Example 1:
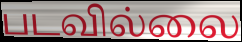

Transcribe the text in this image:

படவில்லை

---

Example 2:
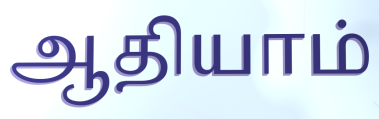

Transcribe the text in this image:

ஆதியாம்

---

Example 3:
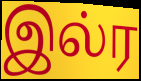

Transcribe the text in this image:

இல்ர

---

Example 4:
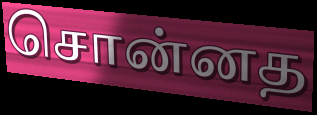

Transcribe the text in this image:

சொன்னத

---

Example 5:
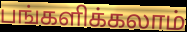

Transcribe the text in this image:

பங்களிக்கலாம்